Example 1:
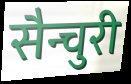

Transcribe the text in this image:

सैन्चुरी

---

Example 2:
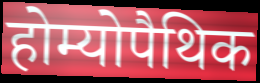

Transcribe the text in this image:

होम्योपैथिक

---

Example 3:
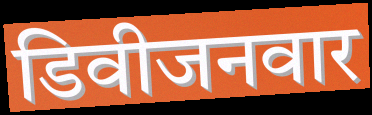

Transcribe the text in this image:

डिवीजनवार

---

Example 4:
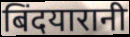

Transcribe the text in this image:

बिंदयारानी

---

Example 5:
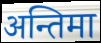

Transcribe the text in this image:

अन्तिमा